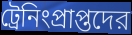
ট্রেনিংপ্রাপ্তদের